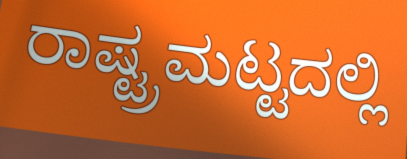
ರಾಷ್ಟ್ರಮಟ್ಟದಲ್ಲಿ